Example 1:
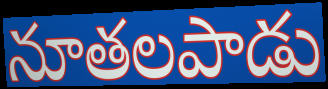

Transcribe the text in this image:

నూతలపాడు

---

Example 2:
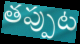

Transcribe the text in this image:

తప్పుట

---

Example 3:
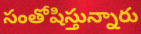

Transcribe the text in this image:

సంతోషిస్తున్నారు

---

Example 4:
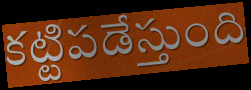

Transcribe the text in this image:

కట్టిపడేస్తుంది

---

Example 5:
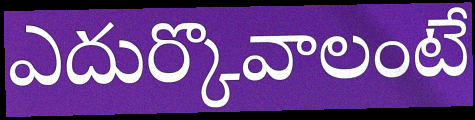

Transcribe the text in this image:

ఎదుర్కొవాలంటే